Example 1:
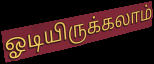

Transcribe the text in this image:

ஓடியிருக்கலாம்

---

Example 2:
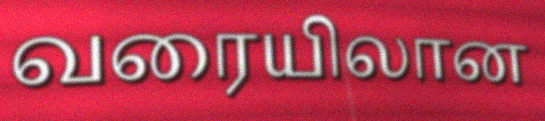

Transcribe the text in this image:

வரையிலான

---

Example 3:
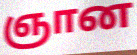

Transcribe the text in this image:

ஞான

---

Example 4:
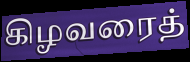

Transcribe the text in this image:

கிழவரைத்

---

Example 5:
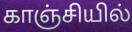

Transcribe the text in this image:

காஞ்சியில்